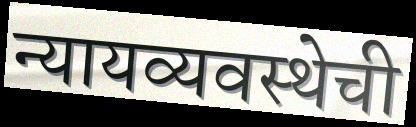
न्यायव्यवस्थेची